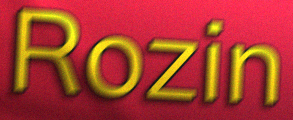
Rozin